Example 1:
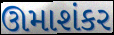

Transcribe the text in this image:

ઊમાશંકર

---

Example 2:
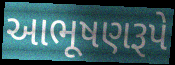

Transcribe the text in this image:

આભૂષણરૂપે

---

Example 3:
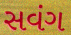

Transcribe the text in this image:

સવંગ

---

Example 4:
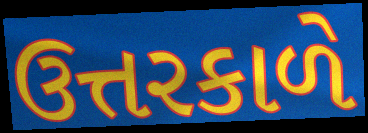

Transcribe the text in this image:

ઉત્તરકાળે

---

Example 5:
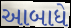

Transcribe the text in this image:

આબાધે